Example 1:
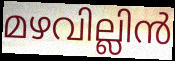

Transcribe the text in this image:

മഴവില്ലിൻ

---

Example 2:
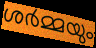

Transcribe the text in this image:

ശർമ്മയും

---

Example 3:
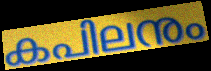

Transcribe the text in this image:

കപിലനും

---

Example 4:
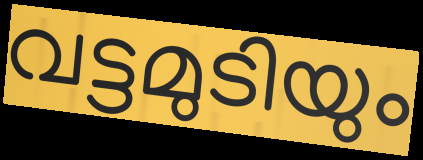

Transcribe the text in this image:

വട്ടമുടിയും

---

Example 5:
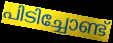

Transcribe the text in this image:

പിടിച്ചോണ്ട്